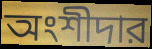
অংশীদার